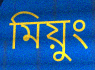
মিয়ুং